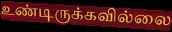
உண்டிருக்கவில்லை